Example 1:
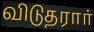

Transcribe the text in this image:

விடுதரார்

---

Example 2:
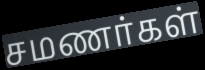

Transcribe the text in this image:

சமணர்கள்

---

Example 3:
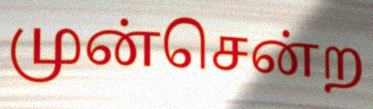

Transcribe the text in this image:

முன்சென்ற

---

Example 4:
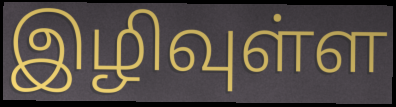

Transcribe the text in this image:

இழிவுள்ள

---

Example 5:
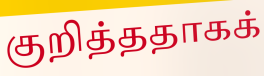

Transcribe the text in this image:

குறித்ததாகக்